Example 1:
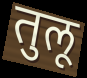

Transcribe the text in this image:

तुलू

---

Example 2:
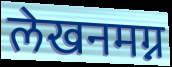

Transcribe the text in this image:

लेखनमग्न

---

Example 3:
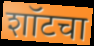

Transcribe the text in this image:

शॉटचा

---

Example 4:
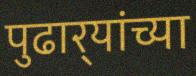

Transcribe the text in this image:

पुढार्‍यांच्या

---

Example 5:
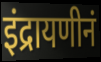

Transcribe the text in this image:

इंद्रायणीनं